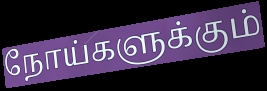
நோய்களுக்கும்